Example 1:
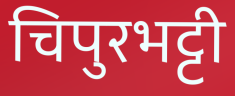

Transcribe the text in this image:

चिपुरभट्टी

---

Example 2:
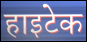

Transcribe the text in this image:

हाइटेक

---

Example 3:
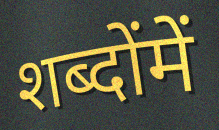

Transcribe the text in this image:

शब्दोंमें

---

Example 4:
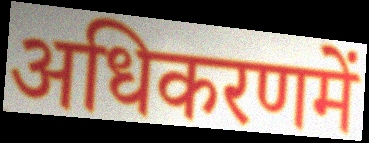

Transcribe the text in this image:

अधिकरणमें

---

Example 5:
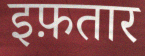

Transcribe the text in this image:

इफ़तार